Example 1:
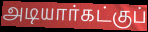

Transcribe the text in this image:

அடியார்கட்குப்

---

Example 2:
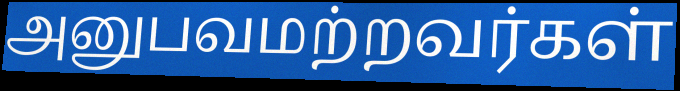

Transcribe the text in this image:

அனுபவமற்றவர்கள்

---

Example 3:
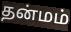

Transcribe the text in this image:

தன்மம்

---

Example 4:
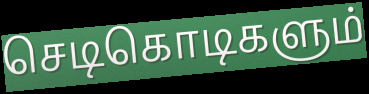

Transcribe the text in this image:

செடிகொடிகளும்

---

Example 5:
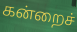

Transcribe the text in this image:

கன்றைச்